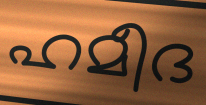
ഹമീദ